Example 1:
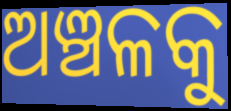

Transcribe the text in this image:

ଅଞ୍ଚଳକୁ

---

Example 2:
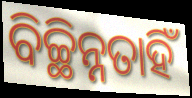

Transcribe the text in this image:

ବିଚ୍ଛିନ୍ନତାହିଁ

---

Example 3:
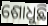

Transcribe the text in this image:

ଶୋଧୁଛି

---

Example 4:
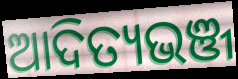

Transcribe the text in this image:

ଆଦିତ୍ୟଭଞ୍ଜ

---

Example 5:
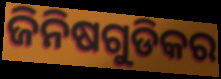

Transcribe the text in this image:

ଜିନିଷଗୁଡିକର